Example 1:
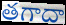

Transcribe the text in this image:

తగాదా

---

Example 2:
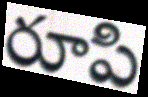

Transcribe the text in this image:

రూపి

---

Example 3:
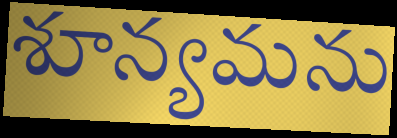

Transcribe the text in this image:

శూన్యమను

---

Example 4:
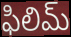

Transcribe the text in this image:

ఫిలిమ్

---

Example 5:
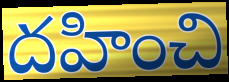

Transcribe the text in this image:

దహించి